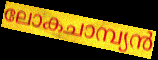
ലോകചാമ്പ്യൻ